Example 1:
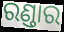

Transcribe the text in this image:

ରଣ୍ଡାର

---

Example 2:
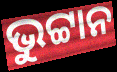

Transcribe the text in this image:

ଭୁଟ୍ଟାନ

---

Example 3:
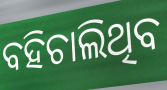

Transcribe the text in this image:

ବହିଚାଲିଥିବ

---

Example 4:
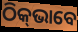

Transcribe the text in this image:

ଠିକ୍‌ଭାବେ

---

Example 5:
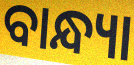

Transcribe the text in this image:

ବାନ୍ଧ୍ୟା